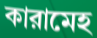
কারামেহ